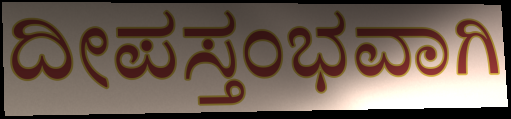
ದೀಪಸ್ತಂಭವಾಗಿ